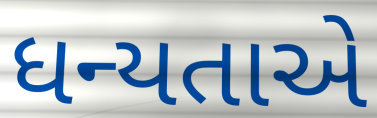
ધન્યતાએ